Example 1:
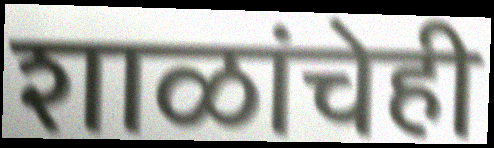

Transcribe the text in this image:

शाळांचेही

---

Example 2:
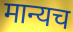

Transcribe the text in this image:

मान्यच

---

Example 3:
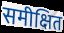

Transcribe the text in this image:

समीक्षित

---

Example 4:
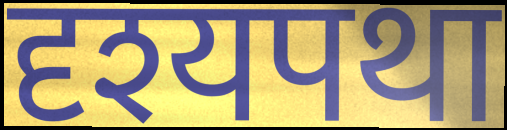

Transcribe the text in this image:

दृश्यपथा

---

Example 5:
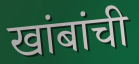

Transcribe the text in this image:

खांबांची